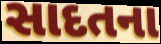
સાદતના